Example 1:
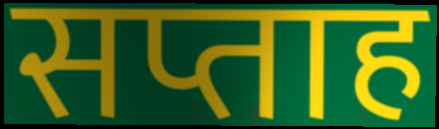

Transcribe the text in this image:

सप्ताह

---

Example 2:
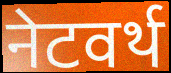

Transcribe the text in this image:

नेटवर्थ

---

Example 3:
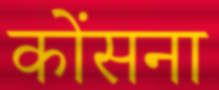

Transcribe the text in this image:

कोंसना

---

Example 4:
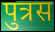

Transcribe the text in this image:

पुत्रस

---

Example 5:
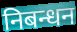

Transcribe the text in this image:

निबन्धन